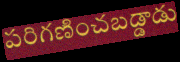
పరిగణించబడ్డాడు